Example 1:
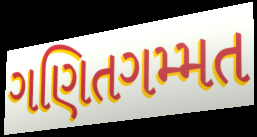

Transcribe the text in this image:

ગણિતગમ્મત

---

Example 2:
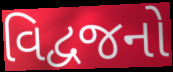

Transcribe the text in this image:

વિદ્વજનો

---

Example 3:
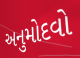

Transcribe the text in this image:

અનુમોદવો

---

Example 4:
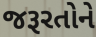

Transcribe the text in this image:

જરૂરતોને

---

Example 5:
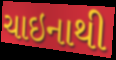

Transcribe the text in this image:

ચાઇનાથી